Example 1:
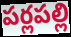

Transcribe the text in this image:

పర్లపల్లి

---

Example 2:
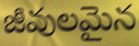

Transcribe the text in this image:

జీవులమైన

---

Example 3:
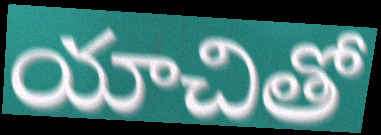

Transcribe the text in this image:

యాచితో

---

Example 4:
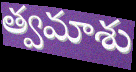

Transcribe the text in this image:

త్వమాశు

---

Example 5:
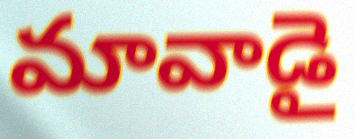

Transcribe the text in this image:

మావాడై